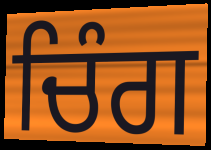
ਚਿੰਗ